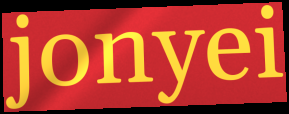
jonyei